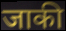
जाकी